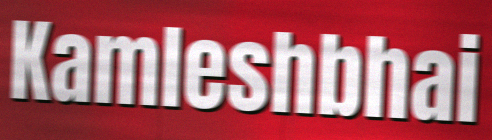
Kamleshbhai